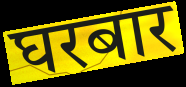
घरबार